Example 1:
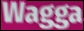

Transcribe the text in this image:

Wagga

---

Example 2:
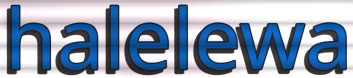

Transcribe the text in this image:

halelewa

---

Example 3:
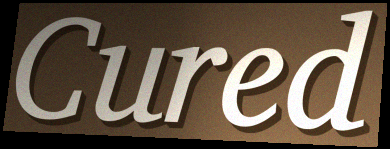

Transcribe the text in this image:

Cured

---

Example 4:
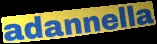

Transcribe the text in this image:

adannella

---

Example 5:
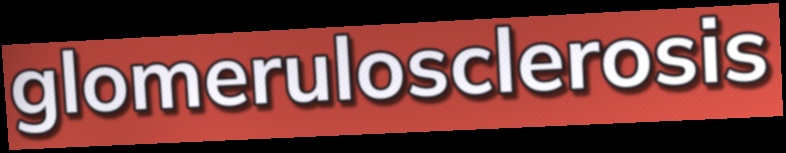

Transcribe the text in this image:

glomerulosclerosis